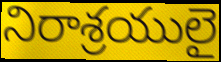
నిరాశ్రయులై